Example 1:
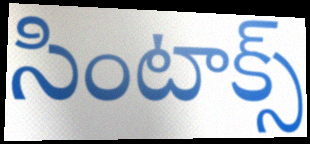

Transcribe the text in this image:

సింటాక్స్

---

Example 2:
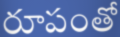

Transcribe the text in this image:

రూపంతో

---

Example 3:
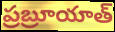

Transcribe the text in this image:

ప్రబ్రూయాత్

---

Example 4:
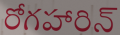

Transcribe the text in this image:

రోగహారిన్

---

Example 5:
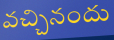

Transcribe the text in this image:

వచ్చినందు